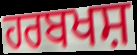
ਹਰਬਖਸ਼